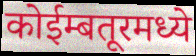
कोईम्बतूरमध्ये